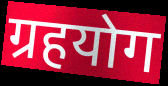
ग्रहयोग